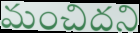
మంచిదని